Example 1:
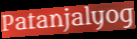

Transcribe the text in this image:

Patanjalyog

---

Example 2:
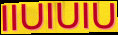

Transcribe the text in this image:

IIUIUIU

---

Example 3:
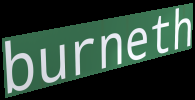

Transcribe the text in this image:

burneth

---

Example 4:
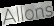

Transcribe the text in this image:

Allons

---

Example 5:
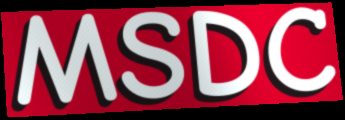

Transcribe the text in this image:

MSDC